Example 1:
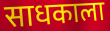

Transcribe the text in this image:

साधकाला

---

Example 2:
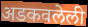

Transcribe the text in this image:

अडकवलेली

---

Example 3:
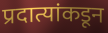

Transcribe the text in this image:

प्रदात्यांकडून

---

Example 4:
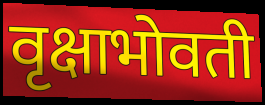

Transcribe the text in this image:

वृक्षाभोवती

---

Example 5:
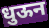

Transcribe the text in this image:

धुऊन